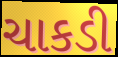
ચાકડી